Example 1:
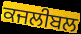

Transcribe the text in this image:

ਕਜਲੀਬਲ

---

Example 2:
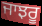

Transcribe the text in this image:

ਜਾਝਰੂ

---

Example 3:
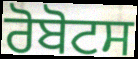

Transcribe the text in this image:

ਰੋਬੋਟਸ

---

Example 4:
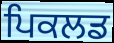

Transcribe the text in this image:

ਪਿਕਲਡ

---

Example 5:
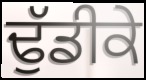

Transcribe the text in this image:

ਢੁੱਡੀਕੇ